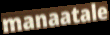
manaatale